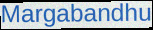
Margabandhu